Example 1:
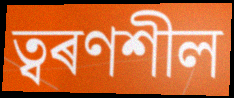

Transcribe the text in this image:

ত্বৰণশীল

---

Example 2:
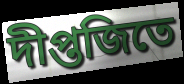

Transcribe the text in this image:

দীপ্তজিতে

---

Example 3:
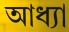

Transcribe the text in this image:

আধ্যা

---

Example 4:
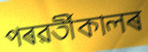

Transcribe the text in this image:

পৰৱৰ্তীকালৰ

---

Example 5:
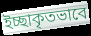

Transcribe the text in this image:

ইচ্ছাকৃতভাবে